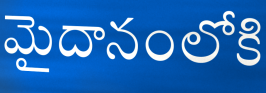
మైదానంలోకి